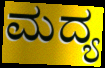
ಮದ್ಯ